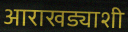
आराखड्याशी